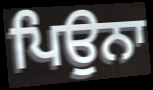
ਪਿਉਨਾ